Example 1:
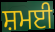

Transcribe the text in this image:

ਸ਼ਮਈ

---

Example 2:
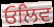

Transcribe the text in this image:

ਓਲਿਵ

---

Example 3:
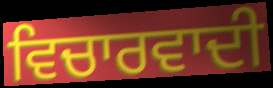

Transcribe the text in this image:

ਵਿਚਾਰਵਾਦੀ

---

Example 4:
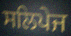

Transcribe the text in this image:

ਸਲਿਪੇਜ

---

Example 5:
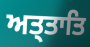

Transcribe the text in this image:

ਅਤ੍ਤਾਤਿ